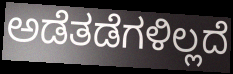
ಅಡೆತಡೆಗಳಿಲ್ಲದೆ